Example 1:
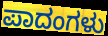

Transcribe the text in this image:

ಪಾದಂಗಳು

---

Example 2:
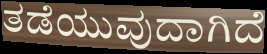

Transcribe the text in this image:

ತಡೆಯುವುದಾಗಿದೆ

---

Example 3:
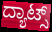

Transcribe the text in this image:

ದ್ಯಾಟ್ಸ್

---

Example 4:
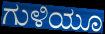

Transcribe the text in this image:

ಗುಳಿಯೂ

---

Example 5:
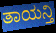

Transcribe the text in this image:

ತಾಯನ್ತಿ